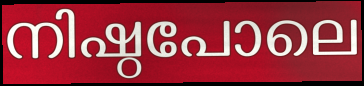
നിഷ്ഠപോലെ